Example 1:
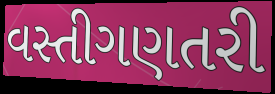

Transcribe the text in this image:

વસ્તીગણતરી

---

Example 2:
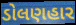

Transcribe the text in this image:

ડોલણહાર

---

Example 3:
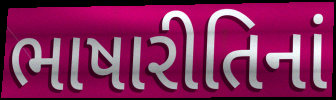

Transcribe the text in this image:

ભાષારીતિનાં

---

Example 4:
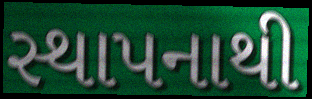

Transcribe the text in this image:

સ્થાપનાથી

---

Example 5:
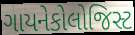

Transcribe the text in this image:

ગાયનેકોલોજિસ્ટ